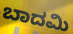
ಬಾದಮಿ